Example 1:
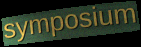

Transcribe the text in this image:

symposium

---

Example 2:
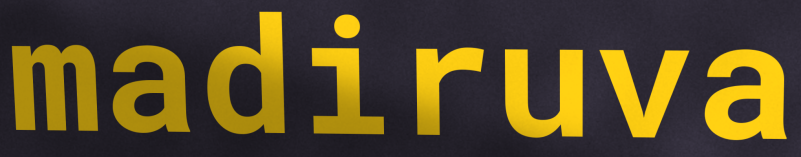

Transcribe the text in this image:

madiruva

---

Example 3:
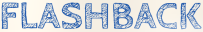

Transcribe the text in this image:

FLASHBACK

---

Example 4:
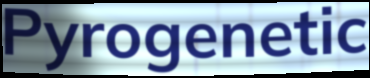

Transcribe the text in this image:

Pyrogenetic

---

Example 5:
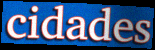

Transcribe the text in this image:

cidades